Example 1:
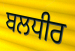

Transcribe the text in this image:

ਬਲਧੀਰ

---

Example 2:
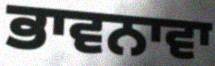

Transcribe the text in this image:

ਭਾਵਨਾਵਾ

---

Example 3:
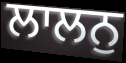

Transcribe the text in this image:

ਲਾਲਨੁ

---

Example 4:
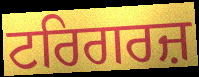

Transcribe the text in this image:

ਟਰਿਗਰਜ਼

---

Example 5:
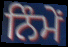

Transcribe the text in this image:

ਨਿੰਮੇਂ